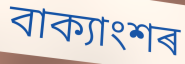
বাক্যাংশৰ